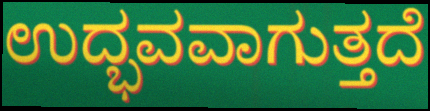
ಉದ್ಭವವಾಗುತ್ತದೆ